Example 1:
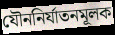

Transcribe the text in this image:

যৌননির্যাতনমূলক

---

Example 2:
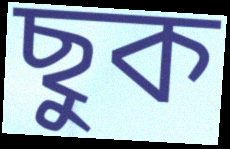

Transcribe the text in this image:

ছুক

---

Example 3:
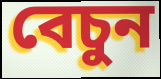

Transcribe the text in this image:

বেচুন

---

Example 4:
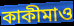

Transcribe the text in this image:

কাকীমাও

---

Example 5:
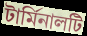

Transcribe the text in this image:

টার্মিনালটি